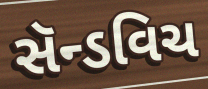
સૅન્ડવિચ